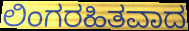
ಲಿಂಗರಹಿತವಾದ